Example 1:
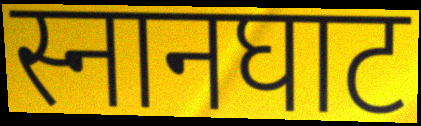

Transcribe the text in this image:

स्नानघाट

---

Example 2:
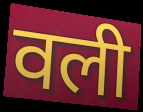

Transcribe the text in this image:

वली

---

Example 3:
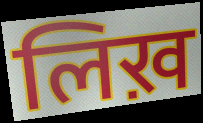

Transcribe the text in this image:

लिख़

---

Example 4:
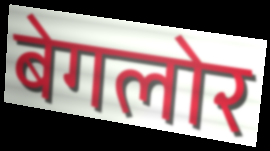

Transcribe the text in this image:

बेगलोर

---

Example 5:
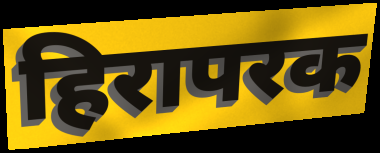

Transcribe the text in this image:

हिरापरक